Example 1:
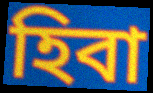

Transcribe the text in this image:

হিবা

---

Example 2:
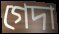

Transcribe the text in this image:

গেদা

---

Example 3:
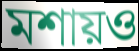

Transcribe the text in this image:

মশায়ও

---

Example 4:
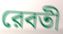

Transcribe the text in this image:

রেবতী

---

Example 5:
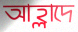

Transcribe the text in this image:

আহ্লাদে